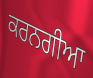
ਕਰਨਗੀਆ